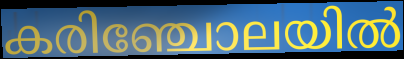
കരിഞ്ചോലയിൽ